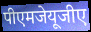
पीएमजेयूजीए